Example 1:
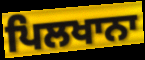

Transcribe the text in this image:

ਪਿਲਖਾਨਾ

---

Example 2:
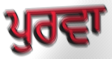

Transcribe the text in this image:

ਪੁਰਵਾ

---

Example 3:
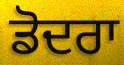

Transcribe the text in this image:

ਡੋਦਰਾ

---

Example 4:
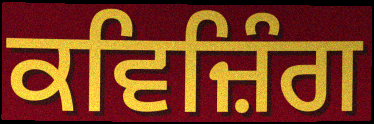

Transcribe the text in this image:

ਕਵਿਜ਼ਿੰਗ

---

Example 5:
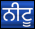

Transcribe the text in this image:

ਨੀਟੂ